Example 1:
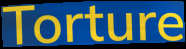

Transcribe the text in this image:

Torture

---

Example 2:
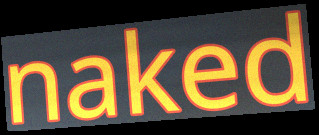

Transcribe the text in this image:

naked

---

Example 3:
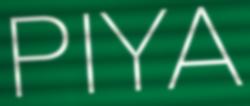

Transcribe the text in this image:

PIYA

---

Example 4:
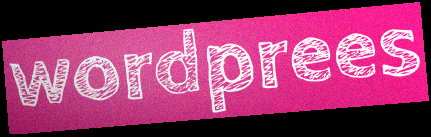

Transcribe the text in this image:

wordprees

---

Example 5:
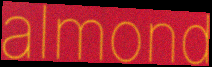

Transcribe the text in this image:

almond